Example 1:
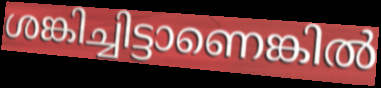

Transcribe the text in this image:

ശങ്കിച്ചിട്ടാണെങ്കിൽ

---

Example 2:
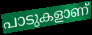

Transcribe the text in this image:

പാടുകളാണ്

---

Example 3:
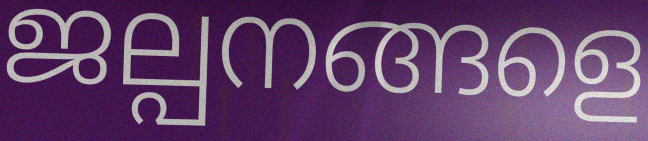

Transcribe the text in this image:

ജല്പനങ്ങളെ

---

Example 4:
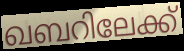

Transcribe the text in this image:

ഖബറിലേക്ക്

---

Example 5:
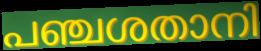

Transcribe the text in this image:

പഞ്ചശതാനി